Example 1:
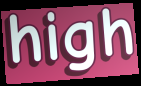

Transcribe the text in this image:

high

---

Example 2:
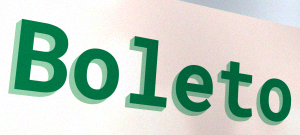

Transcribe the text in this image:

Boleto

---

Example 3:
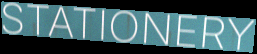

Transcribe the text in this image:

STATIONERY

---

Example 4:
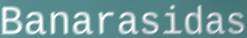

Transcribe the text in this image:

Banarasidas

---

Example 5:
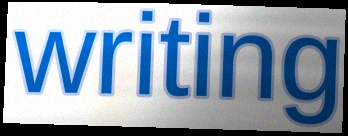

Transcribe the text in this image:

writing